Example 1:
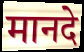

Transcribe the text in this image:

मानदे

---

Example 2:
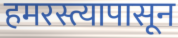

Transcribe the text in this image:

हमरस्त्यापासून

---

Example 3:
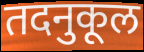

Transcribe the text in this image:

तदनुकूल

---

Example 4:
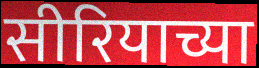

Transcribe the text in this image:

सीरियाच्या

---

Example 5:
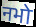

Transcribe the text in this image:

नभो